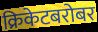
क्रिकेटबरोबर